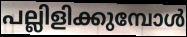
പല്ലിളിക്കുമ്പോൾ